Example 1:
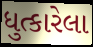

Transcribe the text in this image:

ધુત્કારેલા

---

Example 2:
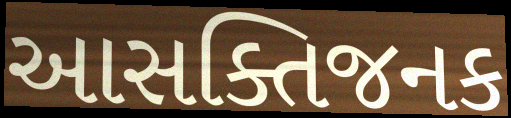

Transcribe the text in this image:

આસક્તિજનક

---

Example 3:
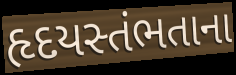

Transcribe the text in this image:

હૃદયસ્તંભતાના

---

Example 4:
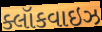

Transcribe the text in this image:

ક્લૉકવાઇઝ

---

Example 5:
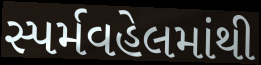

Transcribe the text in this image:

સ્પર્મવહેલમાંથી